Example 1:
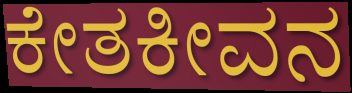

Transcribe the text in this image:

ಕೇತಕೀವನ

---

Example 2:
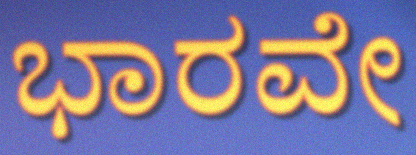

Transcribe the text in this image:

ಭಾರವೇ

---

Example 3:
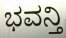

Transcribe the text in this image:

ಭವನ್ತಿ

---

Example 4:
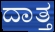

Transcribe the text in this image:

ದಾತ್ತ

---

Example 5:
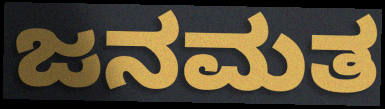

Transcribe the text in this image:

ಜನಮತ